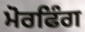
ਮੋਰਫਿੰਗ